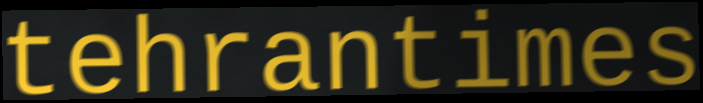
tehrantimes